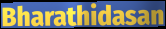
Bharathidasan